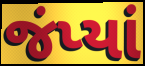
જંપ્યાં